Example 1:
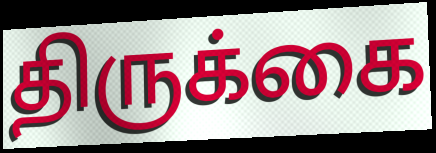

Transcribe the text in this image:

திருக்கை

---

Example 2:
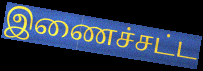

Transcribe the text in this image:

இணைச்சட்ட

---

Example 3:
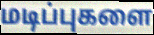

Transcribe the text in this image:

மடிப்புகளை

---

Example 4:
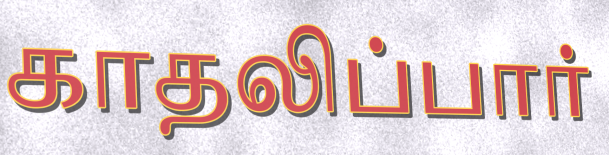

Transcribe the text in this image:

காதலிப்பார்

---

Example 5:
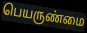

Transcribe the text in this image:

பெயருண்மை